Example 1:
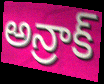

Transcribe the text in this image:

అన్రాక్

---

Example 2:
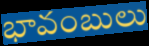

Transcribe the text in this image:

భావంబులు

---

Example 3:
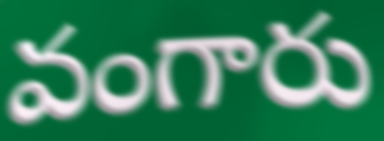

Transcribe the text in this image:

వంగారు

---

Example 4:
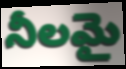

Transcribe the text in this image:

నీలమై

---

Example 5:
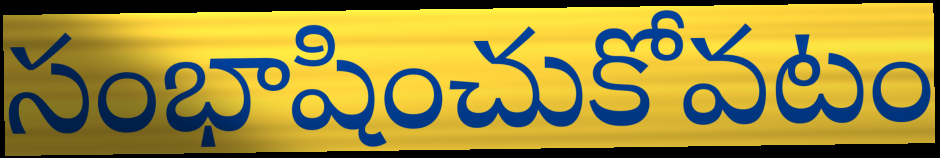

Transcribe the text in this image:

సంభాషించుకోవటం